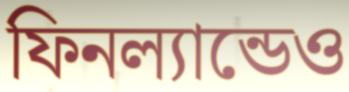
ফিনল্যান্ডেও